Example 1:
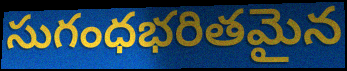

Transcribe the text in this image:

సుగంధభరితమైన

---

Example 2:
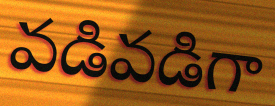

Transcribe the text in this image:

వడివడిగా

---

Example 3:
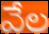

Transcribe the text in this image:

వేల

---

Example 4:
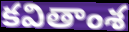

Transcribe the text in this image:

కవితాంశ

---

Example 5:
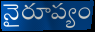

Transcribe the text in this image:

నైరూప్యం